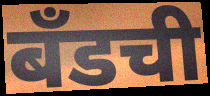
बँडची